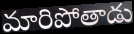
మారిపోతాడు